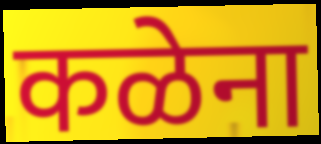
कळेना